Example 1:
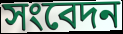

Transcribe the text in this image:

সংবেদন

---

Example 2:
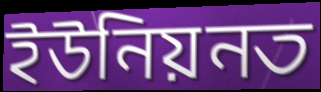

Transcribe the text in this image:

ইউনিয়নত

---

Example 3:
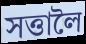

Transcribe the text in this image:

সত্তালৈ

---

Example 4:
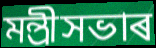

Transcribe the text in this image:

মন্ত্ৰীসভাৰ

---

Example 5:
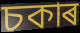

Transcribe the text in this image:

চকাৰ